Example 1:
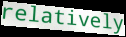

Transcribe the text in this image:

relatively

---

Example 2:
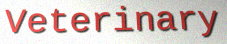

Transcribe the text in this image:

Veterinary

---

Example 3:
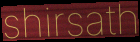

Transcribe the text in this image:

shirsath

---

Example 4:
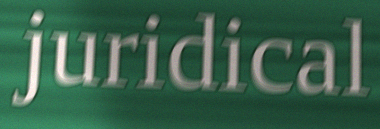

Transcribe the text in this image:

juridical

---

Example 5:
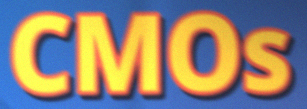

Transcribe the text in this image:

CMOs